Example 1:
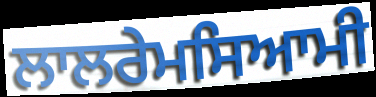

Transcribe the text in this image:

ਲਾਲਰੇਮਸਿਆਮੀ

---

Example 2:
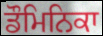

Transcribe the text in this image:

ਡੌਮਿਨਿਕਾ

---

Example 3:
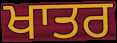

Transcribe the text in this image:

ਖਾਤਰ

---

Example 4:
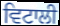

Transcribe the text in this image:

ਵਿਟਾਲੀ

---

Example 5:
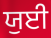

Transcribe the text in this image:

ਯੁਈ